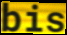
bis